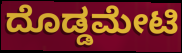
ದೊಡ್ಡಮೇಟಿ